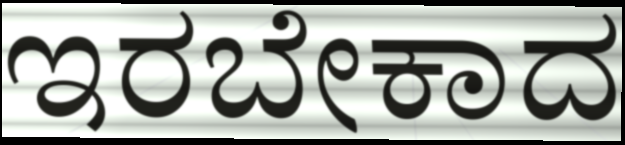
ಇರಬೇಕಾದ